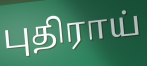
புதிராய்